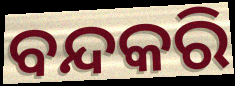
ବନ୍ଦକରି